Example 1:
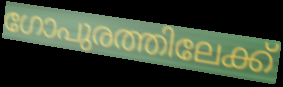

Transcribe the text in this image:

ഗോപുരത്തിലേക്ക്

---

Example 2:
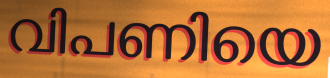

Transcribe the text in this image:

വിപണിയെ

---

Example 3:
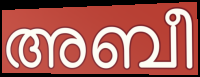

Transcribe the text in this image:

അബീ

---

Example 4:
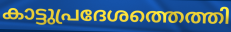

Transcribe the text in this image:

കാട്ടുപ്രദേശത്തെത്തി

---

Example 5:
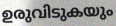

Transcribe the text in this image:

ഉരുവിടുകയും